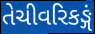
તેચીવરિકઙ્ગં